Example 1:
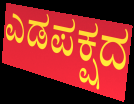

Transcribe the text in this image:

ಎಡಪಕ್ಷದ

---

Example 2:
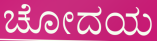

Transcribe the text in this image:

ಚೋದಯ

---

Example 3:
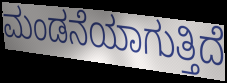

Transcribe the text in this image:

ಮಂಡನೆಯಾಗುತ್ತಿದೆ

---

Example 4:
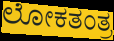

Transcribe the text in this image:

ಲೋಕತಂತ್ರ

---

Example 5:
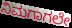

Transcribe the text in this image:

ನಿಮಗಾಗಲೇ